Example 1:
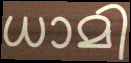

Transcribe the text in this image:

ധാമി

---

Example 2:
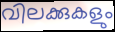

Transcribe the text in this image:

വിലക്കുകളും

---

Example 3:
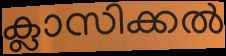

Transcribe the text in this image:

ക്ലാസിക്കൽ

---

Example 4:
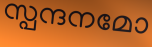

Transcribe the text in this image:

സ്പന്ദനമോ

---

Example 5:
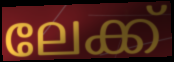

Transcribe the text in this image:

ലേക്ക്